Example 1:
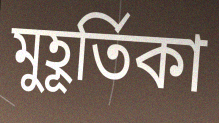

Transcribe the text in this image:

মুহূর্তিকা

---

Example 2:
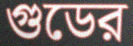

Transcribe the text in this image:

গুডের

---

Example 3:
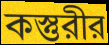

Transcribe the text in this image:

কস্তুরীর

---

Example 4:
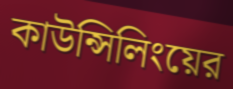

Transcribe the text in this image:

কাউন্সিলিংয়ের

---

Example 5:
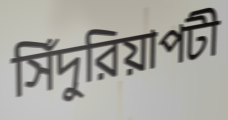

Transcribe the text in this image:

সিঁদুরিয়াপটী